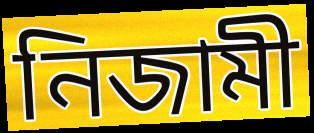
নিজামী